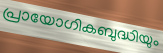
പ്രായോഗികബുദ്ധിയും